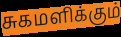
சுகமளிக்கும்